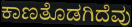
ಕಾಣತೊಡಗಿದೆವು